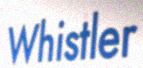
Whistler